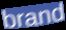
brand